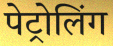
पेट्रोलिंग